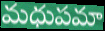
మధుపమా